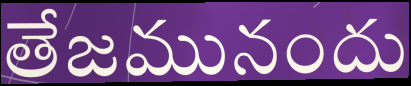
తేజమునందు